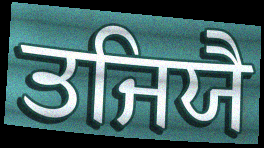
ਤਜਿਯੈ